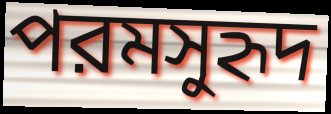
পরমসুহৃদ